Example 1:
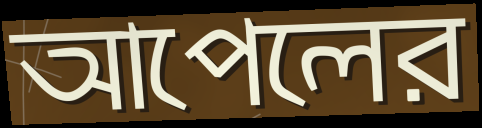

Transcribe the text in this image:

আপেলের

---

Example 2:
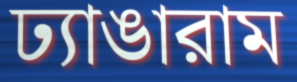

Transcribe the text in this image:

ঢ্যাঙারাম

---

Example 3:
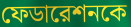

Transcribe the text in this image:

ফেডারেশনকে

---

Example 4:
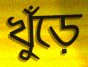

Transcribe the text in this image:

খুঁড়ে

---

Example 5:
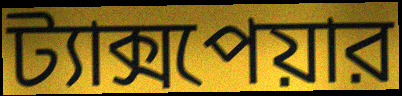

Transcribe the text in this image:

ট্যাক্সপেয়ার